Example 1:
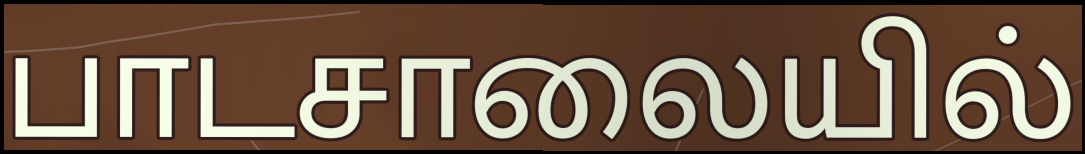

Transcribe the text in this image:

பாடசாலையில்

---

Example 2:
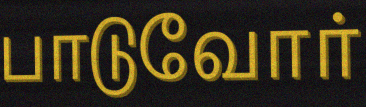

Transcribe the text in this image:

பாடுவோர்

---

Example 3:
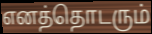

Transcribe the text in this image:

எனத்தொடரும்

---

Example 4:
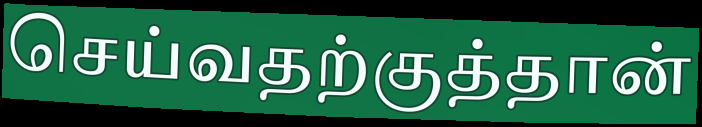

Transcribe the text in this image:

செய்வதற்குத்தான்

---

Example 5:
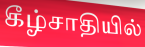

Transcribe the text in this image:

கீழ்சாதியில்